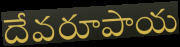
దేవరూపాయ